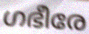
ഗഭീരേ